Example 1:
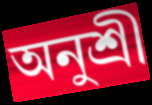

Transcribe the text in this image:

অনুশ্রী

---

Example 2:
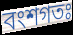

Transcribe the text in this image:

বংশগতঃ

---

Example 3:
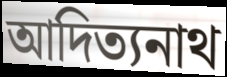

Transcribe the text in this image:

আদিত্যনাথ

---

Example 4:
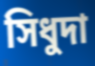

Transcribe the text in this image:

সিধুদা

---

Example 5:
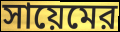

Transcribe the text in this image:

সায়েমের